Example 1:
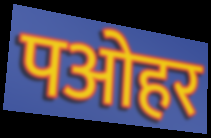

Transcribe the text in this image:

पओहर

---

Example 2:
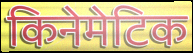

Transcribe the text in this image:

किनेमेटिक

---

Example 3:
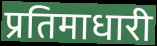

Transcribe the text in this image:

प्रतिमाधारी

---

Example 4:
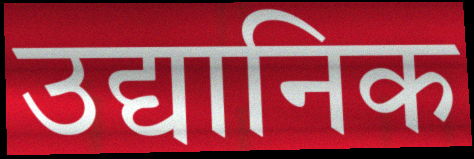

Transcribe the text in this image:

उद्यानिक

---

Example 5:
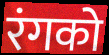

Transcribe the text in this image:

रंगको